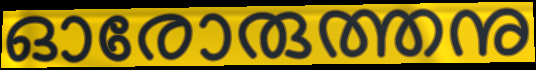
ഓരോരുത്തനു